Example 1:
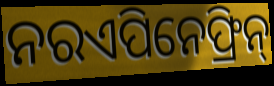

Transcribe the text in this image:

ନରଏପିନେଫ୍ରିନ୍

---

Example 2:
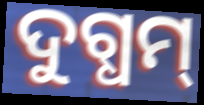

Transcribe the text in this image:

ଦୁଗ୍ଧମ୍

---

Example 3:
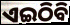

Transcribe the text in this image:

ଏଇଠିବି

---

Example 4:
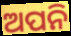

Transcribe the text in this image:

ଅପନି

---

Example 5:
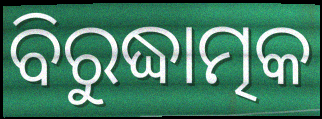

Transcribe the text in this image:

ବିରୁଦ୍ଧାତ୍ମକ